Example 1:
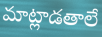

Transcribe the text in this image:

మాట్లాడతాలే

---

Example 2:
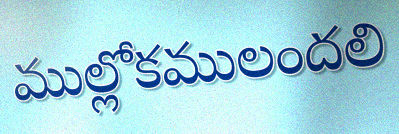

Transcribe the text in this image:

ముల్లోకములందలి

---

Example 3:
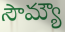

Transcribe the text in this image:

సౌమ్యౌ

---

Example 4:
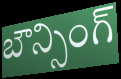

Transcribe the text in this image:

బౌన్సింగ్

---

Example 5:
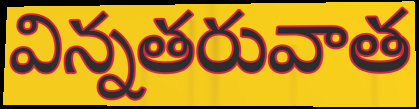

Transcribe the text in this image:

విన్నతరువాత